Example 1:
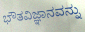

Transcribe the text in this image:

ಭೌತವಿಜ್ಞಾನವನ್ನು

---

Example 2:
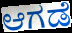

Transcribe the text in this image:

ಆಗಡೆ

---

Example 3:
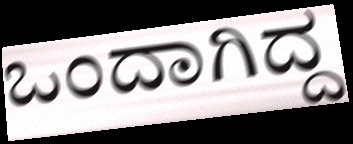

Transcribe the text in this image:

ಒಂದಾಗಿದ್ದ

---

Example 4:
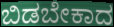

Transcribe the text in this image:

ಬಿಡಬೇಕಾದ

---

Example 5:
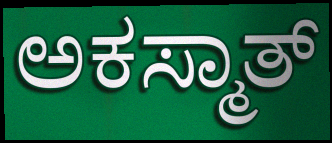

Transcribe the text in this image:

ಅಕಸ್ಮಾತ್